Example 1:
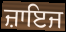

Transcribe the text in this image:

ਜ਼ਾਇਜ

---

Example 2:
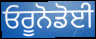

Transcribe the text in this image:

ਓਰੂਨੋਡੋਈ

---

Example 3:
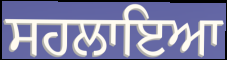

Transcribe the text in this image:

ਸਹਲਾਇਆ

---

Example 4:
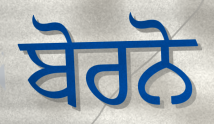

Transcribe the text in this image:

ਬੋਰਨੋ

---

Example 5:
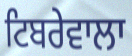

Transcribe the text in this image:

ਟਿਬਰੇਵਾਲਾ